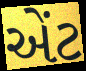
એંટ